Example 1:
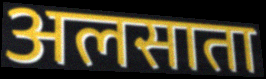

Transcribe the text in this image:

अलसाता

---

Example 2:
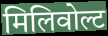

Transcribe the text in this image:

मिलिवोल्ट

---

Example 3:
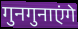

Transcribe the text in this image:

गुनगुनाएंगे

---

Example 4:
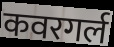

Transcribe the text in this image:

कवरगर्ल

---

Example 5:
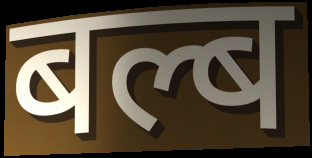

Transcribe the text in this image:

बल्ब